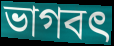
ভাগবৎ